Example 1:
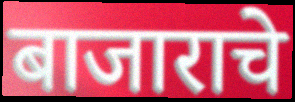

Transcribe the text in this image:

बाजाराचे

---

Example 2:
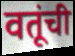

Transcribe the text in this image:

वतूंची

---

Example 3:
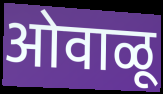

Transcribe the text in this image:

ओवाळू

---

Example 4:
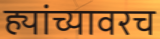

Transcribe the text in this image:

ह्यांच्यावरच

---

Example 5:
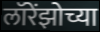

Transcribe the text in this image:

लॉरेंझोच्या